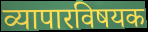
व्यापारविषयक